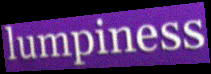
lumpiness